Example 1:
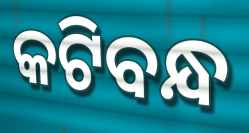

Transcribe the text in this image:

କଟିବନ୍ଧ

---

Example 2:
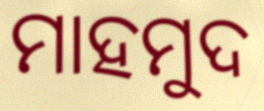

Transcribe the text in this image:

ମାହମୁଦ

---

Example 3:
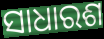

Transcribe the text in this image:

ସାଧାରଶ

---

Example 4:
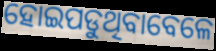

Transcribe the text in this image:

ହୋଇପଡୁଥିବାବେଳେ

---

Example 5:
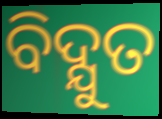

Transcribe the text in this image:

ବିଦ୍ଯୁତ